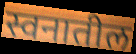
स्वनातील